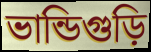
ভান্ডিগুড়ি